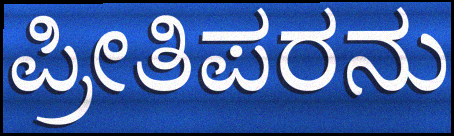
ಪ್ರೀತಿಪರನು